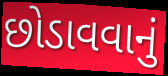
છોડાવવાનું